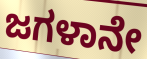
ಜಗಳಾನೇ